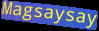
Magsaysay